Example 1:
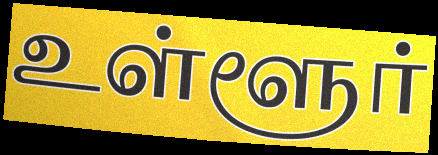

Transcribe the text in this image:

உள்ளூர்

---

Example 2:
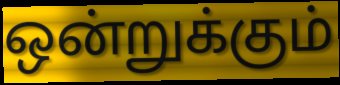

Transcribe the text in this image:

ஒன்றுக்கும்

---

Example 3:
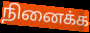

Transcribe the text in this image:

நினைக்க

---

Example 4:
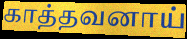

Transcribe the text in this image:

காத்தவனாய்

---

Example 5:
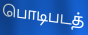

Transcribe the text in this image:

பொடிபடத்